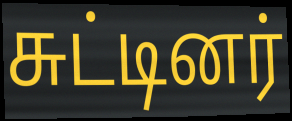
சுட்டினர்